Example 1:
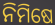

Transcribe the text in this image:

ନିମିଷେ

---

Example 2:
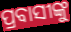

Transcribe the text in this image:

ପ୍ରବାସୀଙ୍କୁ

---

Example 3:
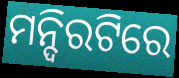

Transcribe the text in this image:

ମନ୍ଦିରଟିରେ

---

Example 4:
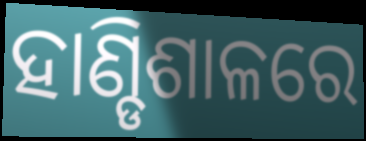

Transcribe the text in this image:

ହାଣ୍ଡିଶାଳରେ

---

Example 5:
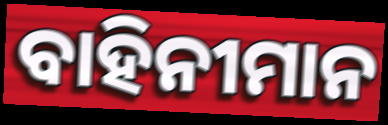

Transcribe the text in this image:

ବାହିନୀମାନ